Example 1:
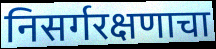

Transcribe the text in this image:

निसर्गरक्षणाचा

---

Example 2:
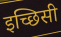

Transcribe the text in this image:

इच्छिसी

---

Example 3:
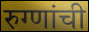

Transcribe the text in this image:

रुग्णांची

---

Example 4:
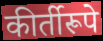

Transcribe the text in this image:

कीर्तीरूपे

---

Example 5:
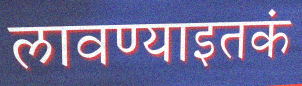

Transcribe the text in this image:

लावण्याइतकं